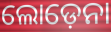
ଲୋଡ଼େନା